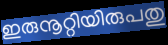
ഇരുനൂറ്റിയിരുപതു